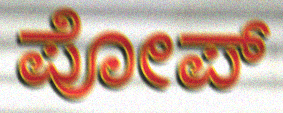
ಪೋಪ್